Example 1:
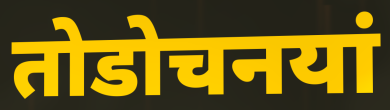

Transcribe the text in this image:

तोडोचनयां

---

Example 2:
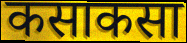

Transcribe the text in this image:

कसाकसा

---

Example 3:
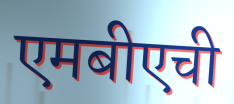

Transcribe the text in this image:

एमबीएची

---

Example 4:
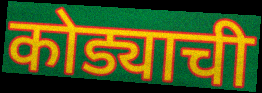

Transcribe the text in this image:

कोड्याची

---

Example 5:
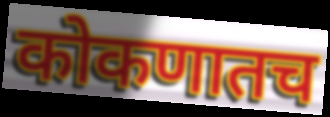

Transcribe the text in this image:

कोकणातच